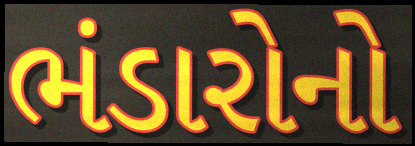
ભંડારોનો